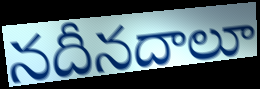
నదీనదాలూ